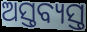
ଅସ୍ତବ୍ୟସ୍ତ